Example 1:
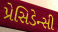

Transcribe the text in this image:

પ્રેસિડેન્સી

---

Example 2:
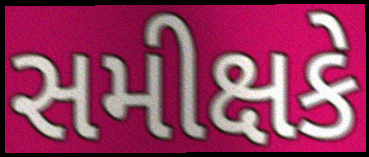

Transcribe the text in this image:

સમીક્ષકે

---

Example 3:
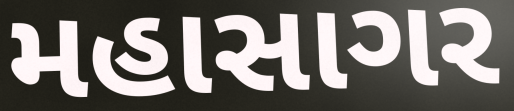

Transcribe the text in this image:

મહાસાગર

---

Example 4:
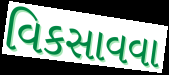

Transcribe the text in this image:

વિકસાવવા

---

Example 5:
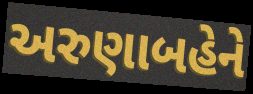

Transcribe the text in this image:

અરુણાબહેને